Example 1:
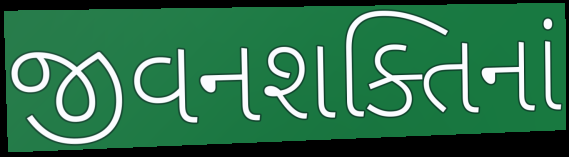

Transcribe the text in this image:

જીવનશક્તિનાં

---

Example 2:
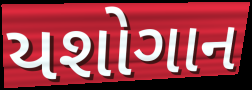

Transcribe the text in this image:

યશોગાન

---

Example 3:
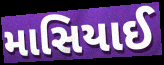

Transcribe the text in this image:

માસિયાઈ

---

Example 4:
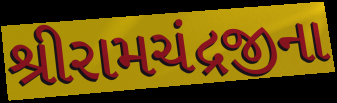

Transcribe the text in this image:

શ્રીરામચંદ્રજીના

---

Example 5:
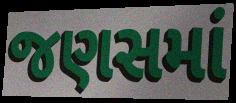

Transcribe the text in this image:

જણસમાં